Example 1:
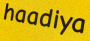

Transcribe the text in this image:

haadiya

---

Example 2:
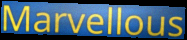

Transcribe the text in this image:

Marvellous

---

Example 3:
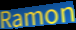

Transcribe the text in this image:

Ramon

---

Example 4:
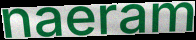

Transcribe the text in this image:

naeram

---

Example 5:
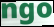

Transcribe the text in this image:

ngo